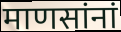
माणसांनां